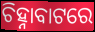
ଚିହ୍ନାବାଟରେ